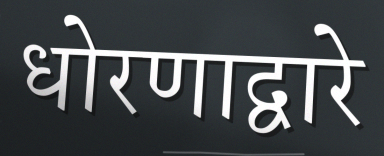
धोरणाद्वारे